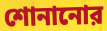
শোনানোর